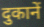
दुकानें